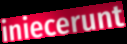
iniecerunt